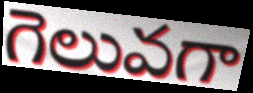
గెలువగా